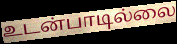
உடன்பாடில்லை